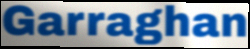
Garraghan